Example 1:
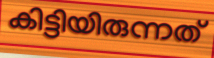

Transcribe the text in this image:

കിട്ടിയിരുന്നത്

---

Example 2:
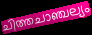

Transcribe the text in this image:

ചിത്തചാഞ്ചല്യം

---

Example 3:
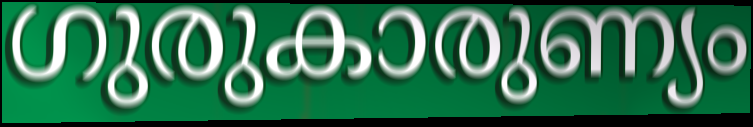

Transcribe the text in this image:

ഗുരുകാരുണ്യം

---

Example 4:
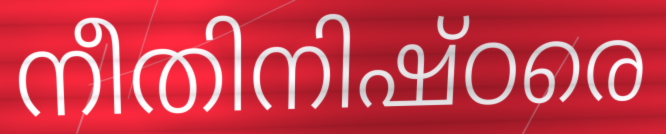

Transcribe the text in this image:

നീതിനിഷ്ഠരെ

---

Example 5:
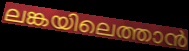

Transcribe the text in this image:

ലങ്കയിലെത്താൻ